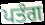
ਪਤੰਗ